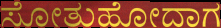
ಸೋತುಹೋದಾಗ